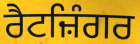
ਰੈਟਜ਼ਿੰਗਰ